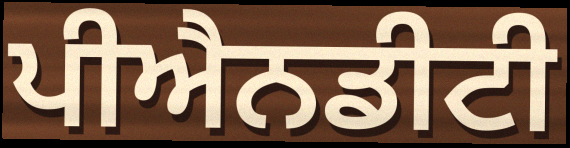
ਪੀਐਨਡੀਟੀ